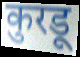
कुरडू